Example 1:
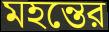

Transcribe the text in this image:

মহন্তের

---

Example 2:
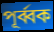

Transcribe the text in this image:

পূর্ব্বক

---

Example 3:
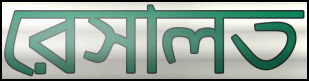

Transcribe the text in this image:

রেসালত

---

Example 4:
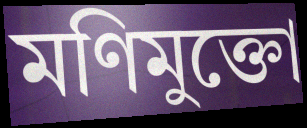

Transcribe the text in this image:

মণিমুক্তো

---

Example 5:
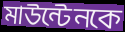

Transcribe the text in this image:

মাউন্টেনকে